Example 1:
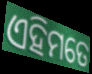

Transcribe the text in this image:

ଏହିମତେ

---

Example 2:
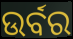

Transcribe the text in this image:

ଉର୍ବର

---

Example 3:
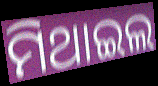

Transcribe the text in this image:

ମିଥାଇଲ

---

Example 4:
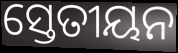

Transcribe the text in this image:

ସ୍ତେତୀୟନ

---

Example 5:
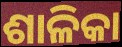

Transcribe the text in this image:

ଶାଳିକା